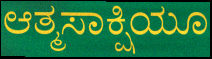
ಆತ್ಮಸಾಕ್ಷಿಯೂ